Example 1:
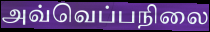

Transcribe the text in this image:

அவ்வெப்பநிலை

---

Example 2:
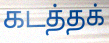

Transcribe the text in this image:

கடத்தக்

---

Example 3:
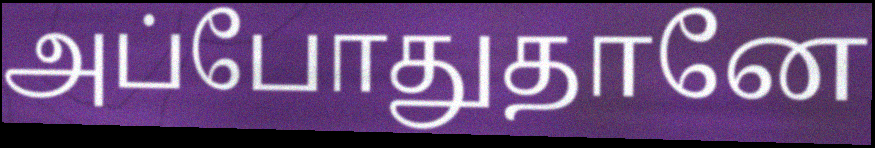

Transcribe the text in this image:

அப்போதுதானே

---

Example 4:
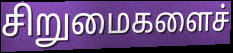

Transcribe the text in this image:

சிறுமைகளைச்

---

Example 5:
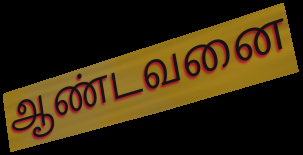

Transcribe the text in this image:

ஆண்டவனை